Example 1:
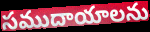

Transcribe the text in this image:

సముదాయాలను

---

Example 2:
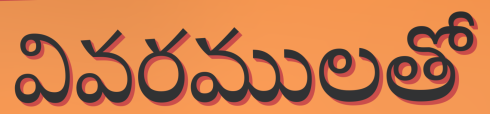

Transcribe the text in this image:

వివరములతో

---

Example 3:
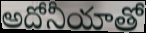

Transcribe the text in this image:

అదోనీయాతో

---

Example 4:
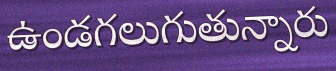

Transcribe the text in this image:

ఉండగలుగుతున్నారు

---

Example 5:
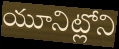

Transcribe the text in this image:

యూనిట్లోని